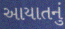
આયાતનું